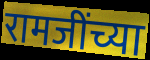
रामजींच्या